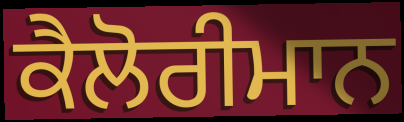
ਕੈਲੋਰੀਮਾਨ